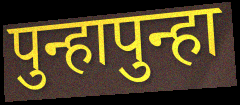
पुन्हापुन्हा